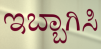
ಇಬ್ಬಾಗಿಸಿ